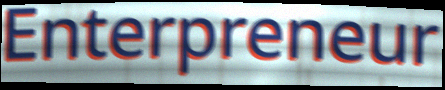
Enterpreneur